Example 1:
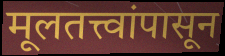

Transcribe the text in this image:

मूलतत्त्वांपासून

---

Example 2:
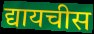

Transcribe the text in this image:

द्यायचीस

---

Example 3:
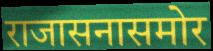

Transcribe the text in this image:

राजासनासमोर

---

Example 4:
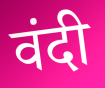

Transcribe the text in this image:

वंदी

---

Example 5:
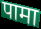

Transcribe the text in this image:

पामा